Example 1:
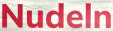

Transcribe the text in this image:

Nudeln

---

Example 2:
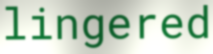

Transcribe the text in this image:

lingered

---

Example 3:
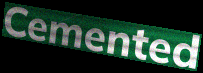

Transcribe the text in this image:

Cemented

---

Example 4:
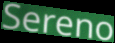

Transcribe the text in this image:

Sereno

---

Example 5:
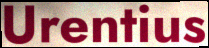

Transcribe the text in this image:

Urentius